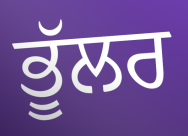
ਭੂੱਲਰ